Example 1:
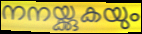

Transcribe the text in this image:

നനയ്ക്കുകയും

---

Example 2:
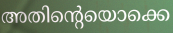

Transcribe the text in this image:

അതിന്റെയൊക്കെ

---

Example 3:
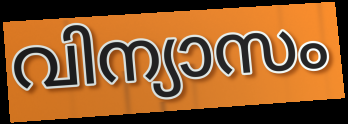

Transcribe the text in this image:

വിന്യാസം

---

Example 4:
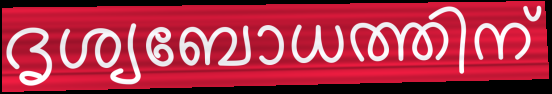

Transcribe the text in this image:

ദൃശ്യബോധത്തിന്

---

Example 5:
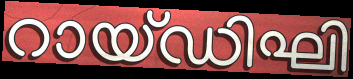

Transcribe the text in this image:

റായ്ഡിഘി